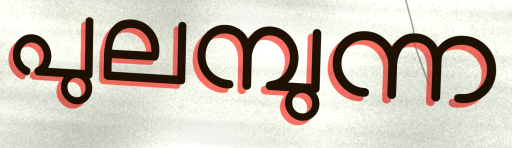
പുലമ്പുന്ന